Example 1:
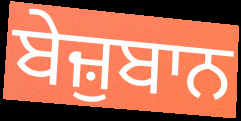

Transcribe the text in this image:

ਬੇਜ਼ੁਬਾਨ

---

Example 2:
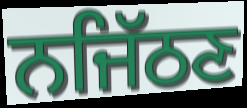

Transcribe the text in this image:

ਨਜਿੱਠਣ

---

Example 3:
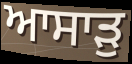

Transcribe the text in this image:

ਆਸਾੜੁ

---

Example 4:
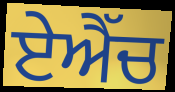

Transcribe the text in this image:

ਏਐੱਚ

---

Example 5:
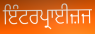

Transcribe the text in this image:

ਇੰਟਰਪ੍ਰਾਈਜ਼ਜ